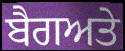
ਬੈਗਅਤੇ